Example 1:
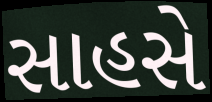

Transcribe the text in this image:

સાહસે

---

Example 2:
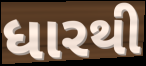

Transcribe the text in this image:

ધારથી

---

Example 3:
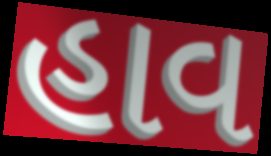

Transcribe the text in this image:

હાવ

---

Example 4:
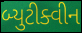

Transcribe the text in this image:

બ્યુટીક્વીન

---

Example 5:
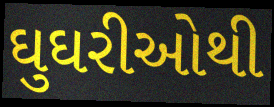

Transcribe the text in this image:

ઘુઘરીઓથી